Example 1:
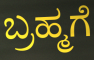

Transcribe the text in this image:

ಬ್ರಹ್ಮಗೆ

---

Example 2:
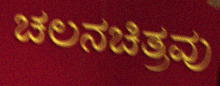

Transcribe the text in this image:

ಚಲನಚಿತ್ರವು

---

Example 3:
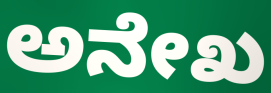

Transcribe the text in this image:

ಅನೇಖ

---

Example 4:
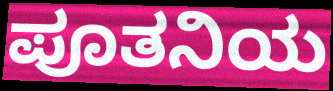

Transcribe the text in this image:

ಪೂತನಿಯ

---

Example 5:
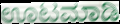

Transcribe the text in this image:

ಊಟಮಾಡಿ